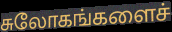
சுலோகங்களைச்